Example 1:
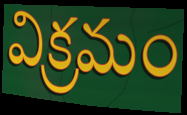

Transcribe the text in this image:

విక్రమం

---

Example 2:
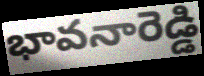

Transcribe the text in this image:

భావనారెడ్డి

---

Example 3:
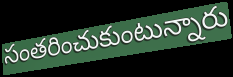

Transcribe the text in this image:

సంతరించుకుంటున్నారు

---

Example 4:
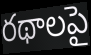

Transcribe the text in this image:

రథాలపై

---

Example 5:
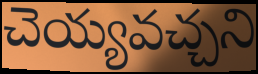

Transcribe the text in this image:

చెయ్యవచ్చని